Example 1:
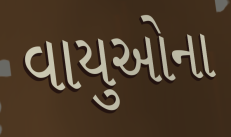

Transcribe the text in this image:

વાયુઓના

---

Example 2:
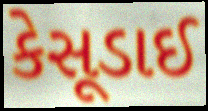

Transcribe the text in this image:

કેસૂડાઈ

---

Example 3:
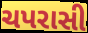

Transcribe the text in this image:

ચપરાસી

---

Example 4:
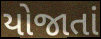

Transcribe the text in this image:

યોજાતાં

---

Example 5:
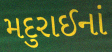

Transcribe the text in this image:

મદુરાઈનાં